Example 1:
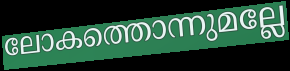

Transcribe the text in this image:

ലോകത്തൊന്നുമല്ലേ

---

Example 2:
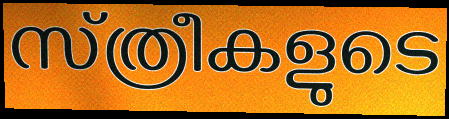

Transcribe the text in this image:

സ്‌ത്രീകളുടെ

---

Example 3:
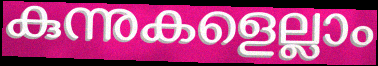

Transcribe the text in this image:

കുന്നുകളെല്ലാം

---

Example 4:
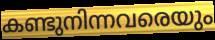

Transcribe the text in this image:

കണ്ടുനിന്നവരെയും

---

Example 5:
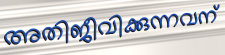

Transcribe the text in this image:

അതിജീവിക്കുന്നവന്